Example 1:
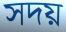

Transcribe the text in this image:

সদয়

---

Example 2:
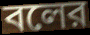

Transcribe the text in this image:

বলের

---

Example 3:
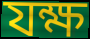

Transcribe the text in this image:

যক্ষ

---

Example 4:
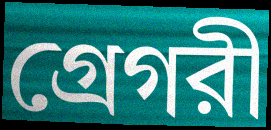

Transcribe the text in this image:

গ্রেগরী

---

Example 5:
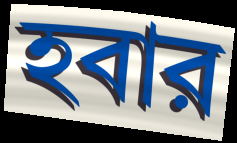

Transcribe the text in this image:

হবার